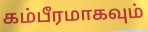
கம்பீரமாகவும்